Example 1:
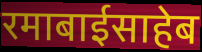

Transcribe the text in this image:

रमाबाईसाहेब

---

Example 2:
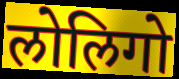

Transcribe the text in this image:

लोलिगो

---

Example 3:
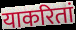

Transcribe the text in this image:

याकरितां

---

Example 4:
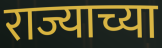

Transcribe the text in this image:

राज्याच्या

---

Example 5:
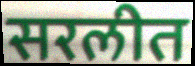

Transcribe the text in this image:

सरलीत